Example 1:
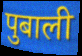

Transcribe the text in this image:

पुबाली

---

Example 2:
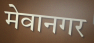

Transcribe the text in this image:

मेवानगर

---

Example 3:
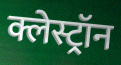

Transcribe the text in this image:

क्लेस्ट्रॉन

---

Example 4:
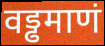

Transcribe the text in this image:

वड्ढमाणं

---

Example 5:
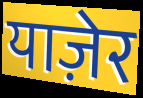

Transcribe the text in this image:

याज़ेर